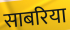
साबरिया